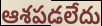
ఆశపడలేదు